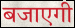
बजाएगी